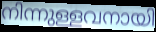
നിന്നുള്ളവനായി